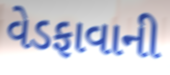
વેડફાવાની